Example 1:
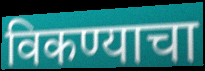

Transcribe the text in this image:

विकण्याचा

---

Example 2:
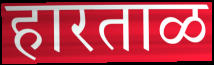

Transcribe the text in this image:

हारताळ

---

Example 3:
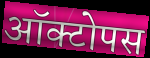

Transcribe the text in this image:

ऑक्टोपस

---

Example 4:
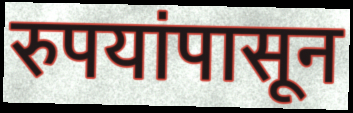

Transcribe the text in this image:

रुपयांपासून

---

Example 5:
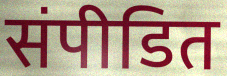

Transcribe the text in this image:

संपीडित